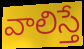
వాలిస్తే